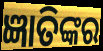
ଜ୍ଞାତିଙ୍କର